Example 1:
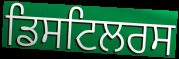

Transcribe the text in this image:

ਡਿਸਟਿਲਰਸ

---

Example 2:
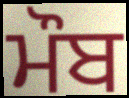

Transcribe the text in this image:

ਮੌਬ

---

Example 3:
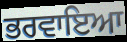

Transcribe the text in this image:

ਭਰਵਾਇਆ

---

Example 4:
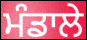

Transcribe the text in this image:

ਮੰਡਾਲੇ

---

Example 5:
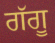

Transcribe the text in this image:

ਗੱਗੂ